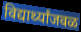
विद्यार्थ्यांजवळ